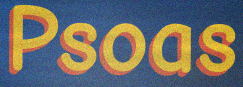
Psoas